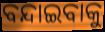
ବନ୍ଦାଇବାକୁ